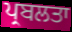
ਪ੍ਰਬਲਤਾ